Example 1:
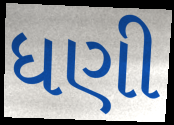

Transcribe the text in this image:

ધણી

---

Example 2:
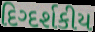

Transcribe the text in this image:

દિગ્દર્શકીય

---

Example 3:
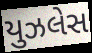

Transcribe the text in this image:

યુઝલેસ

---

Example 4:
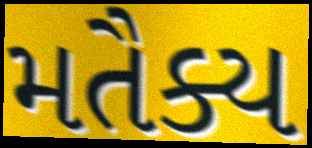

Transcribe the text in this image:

મતૈક્ય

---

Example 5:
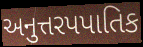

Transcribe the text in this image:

અનુત્તરપપાતિક